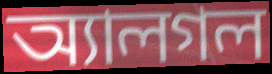
অ্যালগল